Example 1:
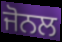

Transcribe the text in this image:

ਜੋਨਲ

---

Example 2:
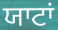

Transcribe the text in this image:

ਯਾਟਾਂ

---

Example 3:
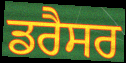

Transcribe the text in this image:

ਡਰੈਸਰ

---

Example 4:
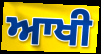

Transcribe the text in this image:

ਆਖੀ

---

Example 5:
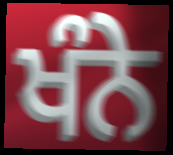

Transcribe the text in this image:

ਖੰਨੇ